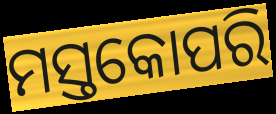
ମସ୍ତକୋପରି